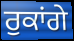
ਰੁਕਾਂਗੇ